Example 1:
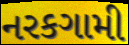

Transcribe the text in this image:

નરકગામી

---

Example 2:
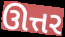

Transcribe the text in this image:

ઊત્તર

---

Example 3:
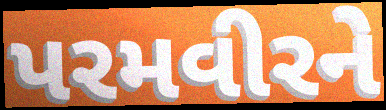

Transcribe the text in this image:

પરમવીરને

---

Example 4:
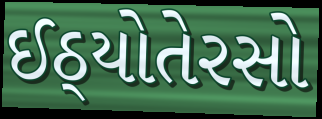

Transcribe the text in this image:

ઈઠ્યોતેરસો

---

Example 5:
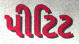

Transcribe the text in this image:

પીટિટ